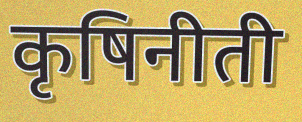
कृषिनीती